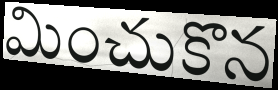
మించుకొన